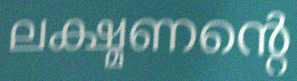
ലക്ഷ്മണന്റെ